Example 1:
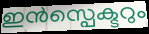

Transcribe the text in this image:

ഇൻസ്പെക്ടറും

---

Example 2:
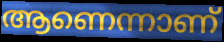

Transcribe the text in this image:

ആണെന്നാണ്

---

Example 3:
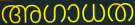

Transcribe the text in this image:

അഗാധത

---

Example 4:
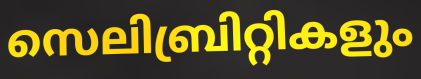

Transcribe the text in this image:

സെലിബ്രിറ്റികളും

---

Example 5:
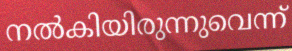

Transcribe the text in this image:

നൽകിയിരുന്നുവെന്ന്